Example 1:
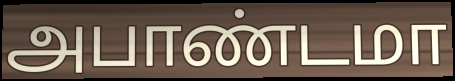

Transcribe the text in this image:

அபாண்டமா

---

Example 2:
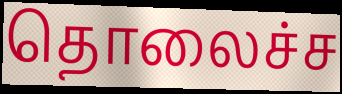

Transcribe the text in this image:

தொலைச்ச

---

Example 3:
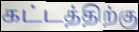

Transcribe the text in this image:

கட்டத்திற்கு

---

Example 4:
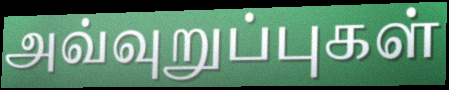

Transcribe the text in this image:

அவ்வுறுப்புகள்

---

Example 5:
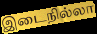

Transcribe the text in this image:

இடைநில்லா